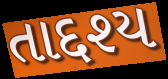
તાદ્દશ્ય